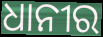
ଧାନୀର